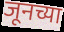
जूनच्या